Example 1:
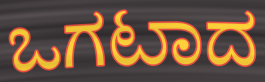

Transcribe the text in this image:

ಒಗಟಾದ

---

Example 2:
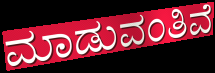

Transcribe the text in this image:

ಮಾಡುವಂತಿವೆ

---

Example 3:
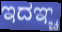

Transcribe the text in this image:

ಇದಞ್ಚ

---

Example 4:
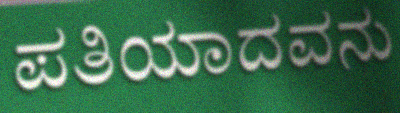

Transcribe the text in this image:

ಪತಿಯಾದವನು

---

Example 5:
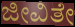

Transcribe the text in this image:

ಜೀವಿತೇ